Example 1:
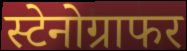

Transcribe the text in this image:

स्टेनोग्राफर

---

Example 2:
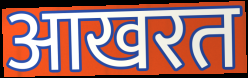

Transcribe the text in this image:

आखरत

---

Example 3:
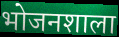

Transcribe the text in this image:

भोजनशाला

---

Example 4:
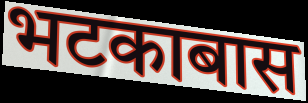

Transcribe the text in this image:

भटकाबास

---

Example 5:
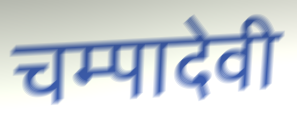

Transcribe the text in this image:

चम्पादेवी